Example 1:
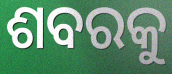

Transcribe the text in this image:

ଶବରକୁ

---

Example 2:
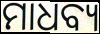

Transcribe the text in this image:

ମାଧବ୍ୟ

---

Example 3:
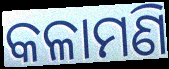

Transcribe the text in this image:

କଳାମଣି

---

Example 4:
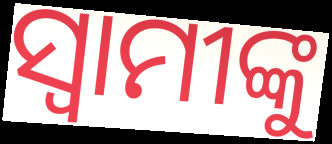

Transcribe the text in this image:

ସ୍ୱାମୀଙ୍କୁ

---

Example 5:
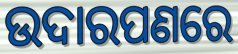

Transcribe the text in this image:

ଉଦାରପଣରେ